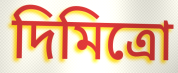
দিমিত্রো